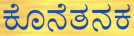
ಕೊನೆತನಕ